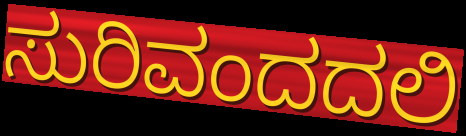
ಸುರಿವಂದದಲಿ